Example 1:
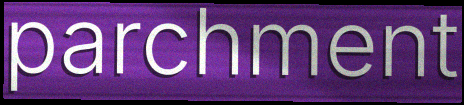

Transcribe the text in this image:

parchment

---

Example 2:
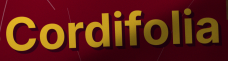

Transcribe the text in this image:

Cordifolia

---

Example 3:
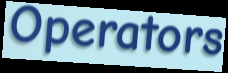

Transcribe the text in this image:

Operators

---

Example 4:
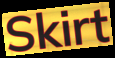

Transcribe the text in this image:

Skirt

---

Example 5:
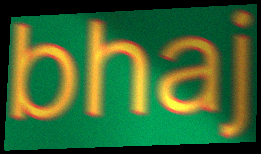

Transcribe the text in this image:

bhaj